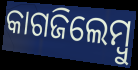
କାଗଜିଲେମ୍ବୁ